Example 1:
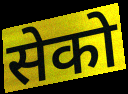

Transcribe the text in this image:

सेको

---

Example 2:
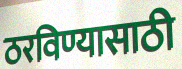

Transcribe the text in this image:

ठरविण्यासाठी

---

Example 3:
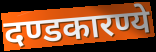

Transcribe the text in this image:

दण्डकारण्ये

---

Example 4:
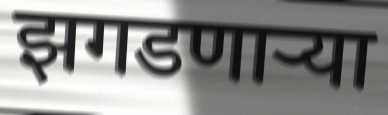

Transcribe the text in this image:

झगडणाऱ्या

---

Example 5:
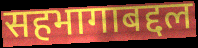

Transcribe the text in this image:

सहभागाबद्दल